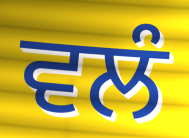
ਵਲੰ